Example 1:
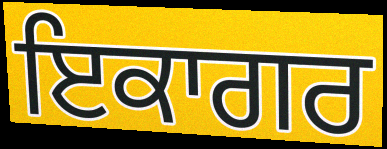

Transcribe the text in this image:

ਇਕਾਗਰ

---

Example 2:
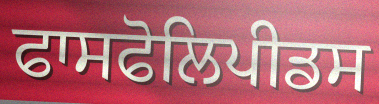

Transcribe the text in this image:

ਫਾਸਫੋਲਿਪੀਡਸ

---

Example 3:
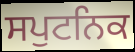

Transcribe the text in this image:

ਸਪੁਟਨਿਕ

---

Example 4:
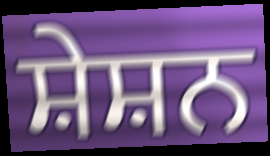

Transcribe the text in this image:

ਸ਼ੇਸ਼ਨ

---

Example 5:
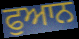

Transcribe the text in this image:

ਫੁਆਨ